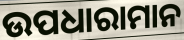
ଉପଧାରାମାନ